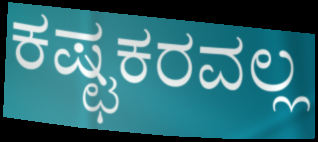
ಕಷ್ಟಕರವಲ್ಲ